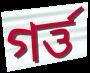
গর্ত্ত